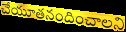
చేయూతనందించాలని